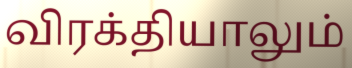
விரக்தியாலும்